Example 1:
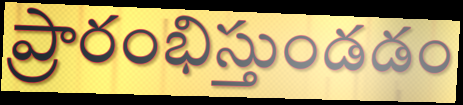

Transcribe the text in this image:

ప్రారంభిస్తుండడం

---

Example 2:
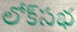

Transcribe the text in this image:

లోక్‌సభ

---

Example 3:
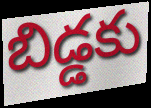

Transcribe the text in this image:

బిడ్డకు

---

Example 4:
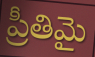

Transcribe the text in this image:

ప్రీతిమై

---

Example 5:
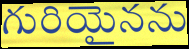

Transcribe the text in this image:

గురియైనను